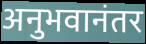
अनुभवानंतर